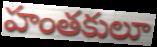
హంతకులూ